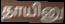
தாயினு